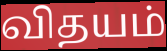
விதயம்